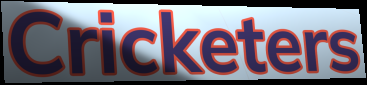
Cricketers